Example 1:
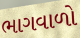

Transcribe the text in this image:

ભાગવાળો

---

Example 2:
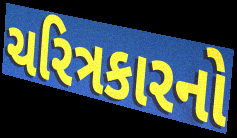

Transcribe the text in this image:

ચરિત્રકારનો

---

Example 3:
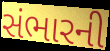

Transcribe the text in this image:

સંભારની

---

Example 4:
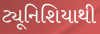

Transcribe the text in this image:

ટ્યૂનિશિયાથી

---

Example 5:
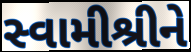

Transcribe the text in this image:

સ્વામીશ્રીને